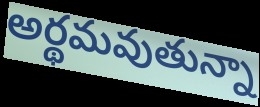
అర్థమవుతున్నా